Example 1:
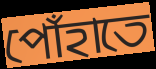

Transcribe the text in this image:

পোঁহাতে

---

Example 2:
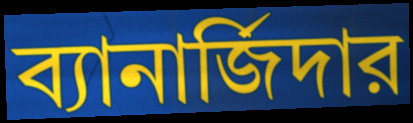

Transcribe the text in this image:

ব্যানার্জিদার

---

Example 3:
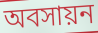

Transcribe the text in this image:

অবসায়ন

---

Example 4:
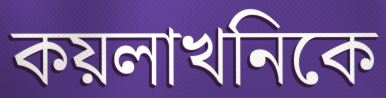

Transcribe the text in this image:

কয়লাখনিকে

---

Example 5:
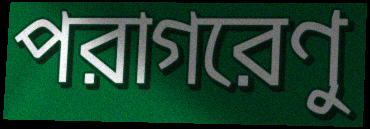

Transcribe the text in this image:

পরাগরেণু